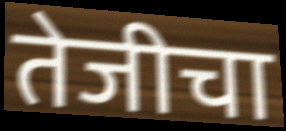
तेजीचा